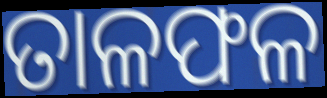
ତାଳଫଳ